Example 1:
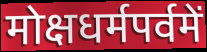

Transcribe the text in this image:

मोक्षधर्मपर्वमें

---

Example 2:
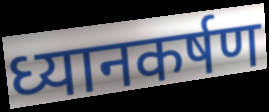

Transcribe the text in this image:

ध्यानकर्षण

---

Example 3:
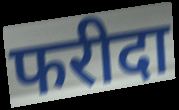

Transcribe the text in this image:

फरीदा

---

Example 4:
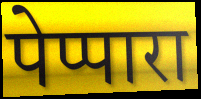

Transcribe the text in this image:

पेप्पारा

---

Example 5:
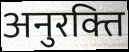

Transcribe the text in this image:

अनुरक्ति